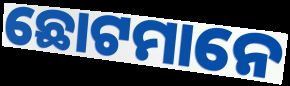
ଛୋଟମାନେ